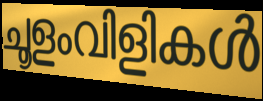
ചൂളംവിളികൾ